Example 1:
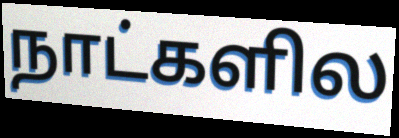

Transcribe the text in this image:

நாட்களில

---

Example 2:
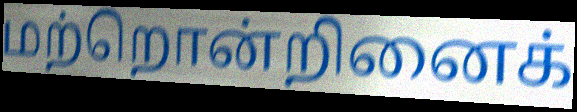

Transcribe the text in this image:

மற்றொன்றினைக்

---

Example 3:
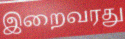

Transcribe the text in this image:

இறைவரது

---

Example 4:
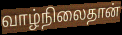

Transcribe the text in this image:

வாழ்நிலைதான்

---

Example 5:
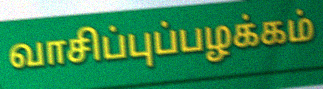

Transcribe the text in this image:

வாசிப்புப்பழக்கம்